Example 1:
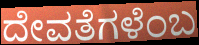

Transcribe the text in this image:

ದೇವತೆಗಳೆಂಬ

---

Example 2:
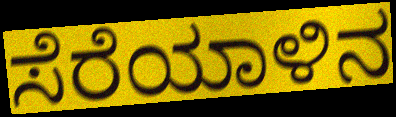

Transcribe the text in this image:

ಸೆರೆಯಾಳಿನ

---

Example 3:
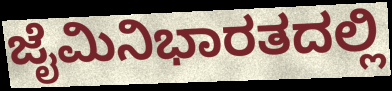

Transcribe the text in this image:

ಜೈಮಿನಿಭಾರತದಲ್ಲಿ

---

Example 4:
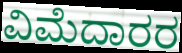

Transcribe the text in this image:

ವಿಮೆದಾರರ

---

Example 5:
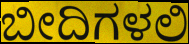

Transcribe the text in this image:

ಬೀದಿಗಳಲಿ